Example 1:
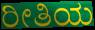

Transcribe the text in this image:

ರೀತಿಯ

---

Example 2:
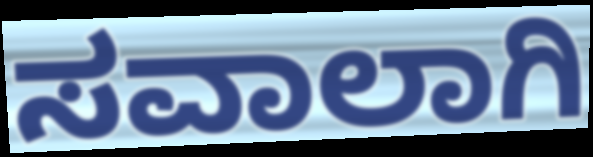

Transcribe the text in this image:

ಸವಾಲಾಗಿ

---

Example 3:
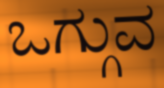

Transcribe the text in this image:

ಒಗ್ಗುವ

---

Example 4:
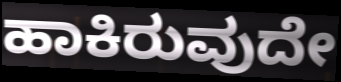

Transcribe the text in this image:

ಹಾಕಿರುವುದೇ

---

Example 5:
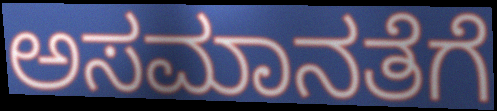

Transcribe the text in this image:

ಅಸಮಾನತೆಗೆ